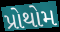
પ્રોથોમ